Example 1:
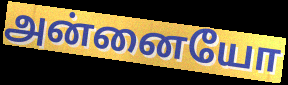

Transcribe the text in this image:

அன்னையோ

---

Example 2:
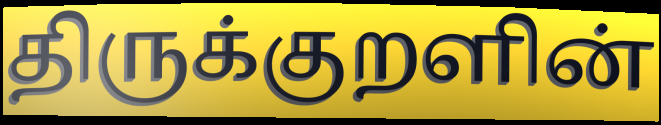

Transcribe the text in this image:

திருக்குறளின்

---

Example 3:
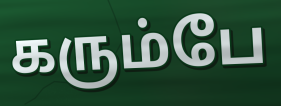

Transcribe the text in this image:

கரும்பே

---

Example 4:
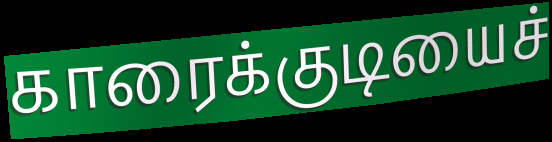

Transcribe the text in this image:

காரைக்குடியைச்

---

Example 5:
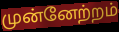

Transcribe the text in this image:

முன்னேற்றம்